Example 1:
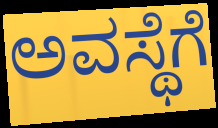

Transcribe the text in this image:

ಅವಸ್ಥೆಗೆ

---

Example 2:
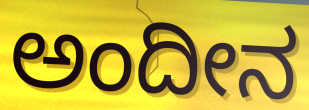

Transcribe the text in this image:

ಅಂದೀನ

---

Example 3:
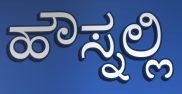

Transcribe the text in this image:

ಹೌಸ್ನಲ್ಲಿ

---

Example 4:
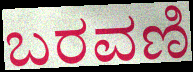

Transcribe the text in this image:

ಬರವಣಿ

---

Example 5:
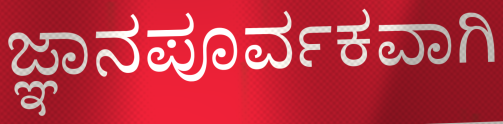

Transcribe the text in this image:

ಜ್ಞಾನಪೂರ್ವಕವಾಗಿ